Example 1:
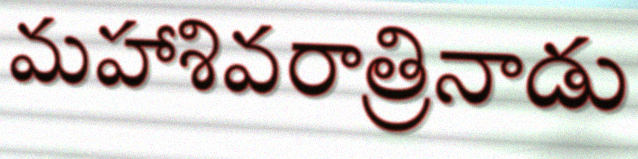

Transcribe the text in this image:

మహాశివరాత్రినాడు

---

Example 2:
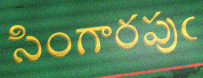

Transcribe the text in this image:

సింగారపుఁ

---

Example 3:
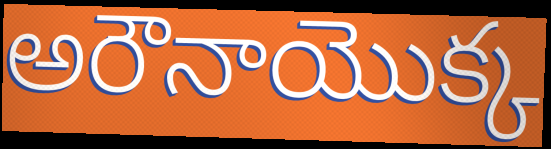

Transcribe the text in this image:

అరౌనాయొక్క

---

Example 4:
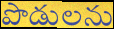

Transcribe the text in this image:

పొడులను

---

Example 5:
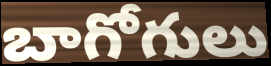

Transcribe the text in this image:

బాగోగులు